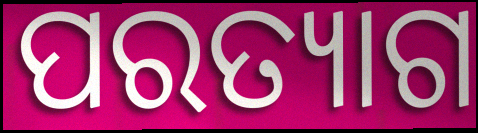
ପରତ୍ୟାଗ